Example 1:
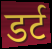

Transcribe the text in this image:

डर्ट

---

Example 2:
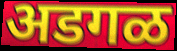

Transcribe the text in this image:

अडगळ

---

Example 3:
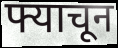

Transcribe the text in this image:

फ्याचून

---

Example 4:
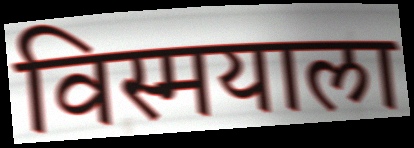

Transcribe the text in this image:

विस्मयाला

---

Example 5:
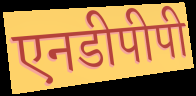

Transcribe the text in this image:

एनडीपीपी